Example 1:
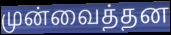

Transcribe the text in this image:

முன்வைத்தன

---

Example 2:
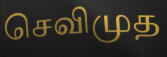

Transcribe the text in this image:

செவிமுத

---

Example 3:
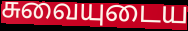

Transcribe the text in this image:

சுவையுடைய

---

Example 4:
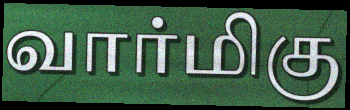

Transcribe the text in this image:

வார்மிகு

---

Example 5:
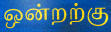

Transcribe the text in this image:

ஒன்றற்கு